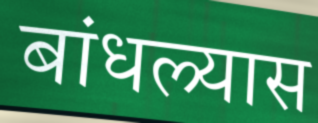
बांधल्यास